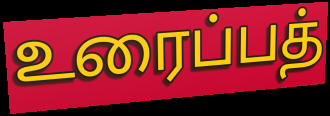
உரைப்பத்